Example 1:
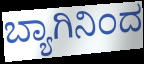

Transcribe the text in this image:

ಬ್ಯಾಗಿನಿಂದ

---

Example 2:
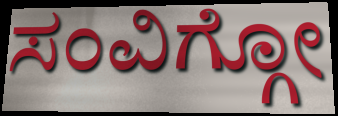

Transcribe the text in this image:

ಸಂವಿಗ್ಗೋ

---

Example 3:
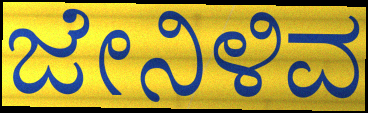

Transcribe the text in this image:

ಜೇನಿಳಿವ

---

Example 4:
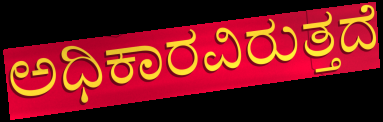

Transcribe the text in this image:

ಅಧಿಕಾರವಿರುತ್ತದೆ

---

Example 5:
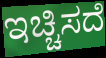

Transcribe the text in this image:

ಇಚ್ಚಿಸದೆ